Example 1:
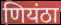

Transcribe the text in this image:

णियंठा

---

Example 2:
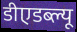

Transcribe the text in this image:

डीएडब्ल्यू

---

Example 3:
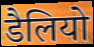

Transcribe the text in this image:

डैलियो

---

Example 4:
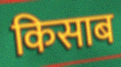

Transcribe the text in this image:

किसाब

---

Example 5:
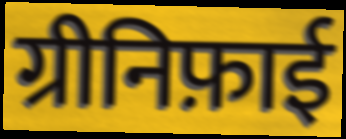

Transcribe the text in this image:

ग्रीनिफ़ाई